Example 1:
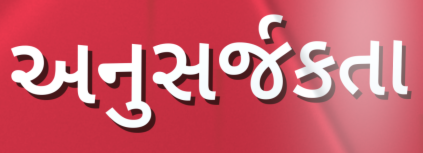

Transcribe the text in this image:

અનુસર્જકતા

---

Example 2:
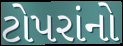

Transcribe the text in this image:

ટોપરાંનો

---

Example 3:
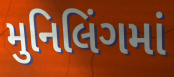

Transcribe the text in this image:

મુનિલિંગમાં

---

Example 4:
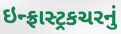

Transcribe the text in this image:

ઇન્ફ્રાસ્ટ્રકચરનું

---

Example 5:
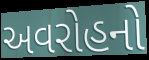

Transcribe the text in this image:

અવરોહનો